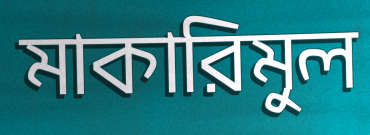
মাকারিমুল